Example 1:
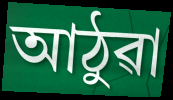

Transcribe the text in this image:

আঠুৱা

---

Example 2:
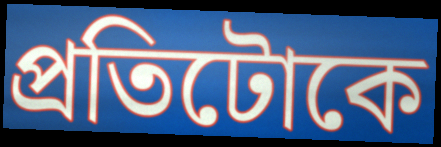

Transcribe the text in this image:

প্ৰতিটোকে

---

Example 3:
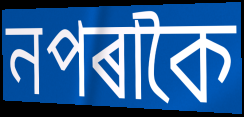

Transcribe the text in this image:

নপৰাকৈ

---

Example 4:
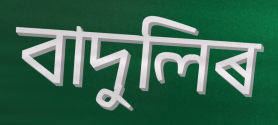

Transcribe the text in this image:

বাদুলিৰ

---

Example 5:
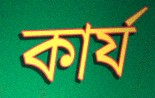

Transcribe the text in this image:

কাৰ্য